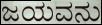
ಜಯವನು